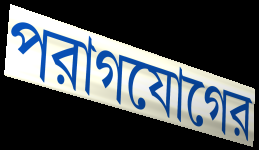
পরাগযোগের